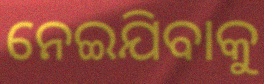
ନେଇଯିବାକୁ